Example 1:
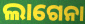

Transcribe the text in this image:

ଲାଗେନା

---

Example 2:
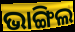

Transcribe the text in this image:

ଭାଙ୍ଗିଲ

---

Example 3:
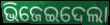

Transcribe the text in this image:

ଭିଜେଇଦେଲା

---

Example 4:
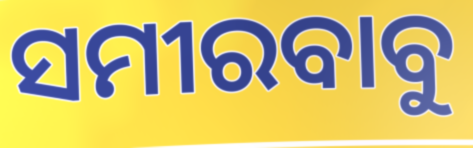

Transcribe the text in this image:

ସମୀରବାବୁ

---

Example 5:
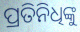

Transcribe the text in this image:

ପ୍ରତିନିଧିଙ୍କୁ